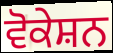
ਵੋਕੇਸ਼ਨ